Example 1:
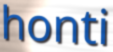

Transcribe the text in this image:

honti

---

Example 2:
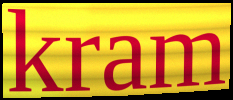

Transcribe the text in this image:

kram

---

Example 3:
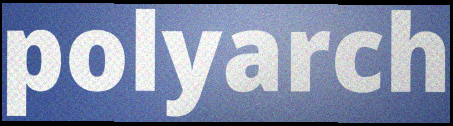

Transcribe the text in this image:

polyarch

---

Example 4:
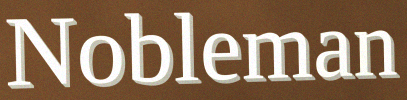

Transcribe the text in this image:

Nobleman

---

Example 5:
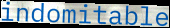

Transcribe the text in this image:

indomitable